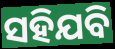
ସହିଯବି